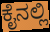
ಕೈನಲ್ಲಿ